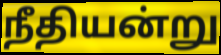
நீதியன்று